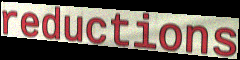
reductions